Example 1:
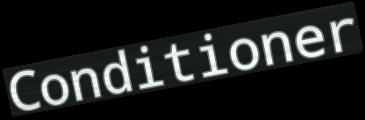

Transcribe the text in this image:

Conditioner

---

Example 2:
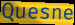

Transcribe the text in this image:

Quesne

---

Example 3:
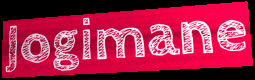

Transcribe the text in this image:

Jogimane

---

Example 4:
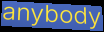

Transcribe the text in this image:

anybody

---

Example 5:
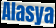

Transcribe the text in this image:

Alasya